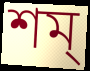
শম্